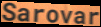
Sarovar